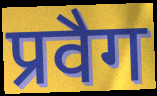
प्रवैग